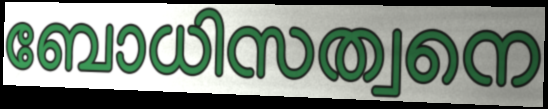
ബോധിസത്വനെ